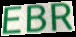
EBR